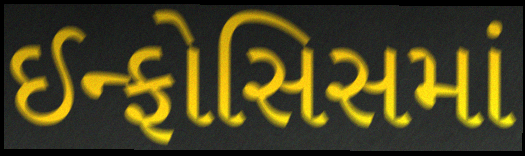
ઈન્ફોસિસમાં